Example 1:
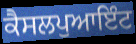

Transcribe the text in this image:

ਕੈਸਲਪੁਆਇੰਟ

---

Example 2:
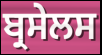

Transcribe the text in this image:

ਬ੍ਰਸੇਲਸ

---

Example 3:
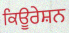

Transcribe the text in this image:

ਕਿਊਰੇਸ਼ਨ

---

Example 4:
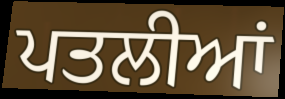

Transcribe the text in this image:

ਪਤਲੀਆਂ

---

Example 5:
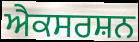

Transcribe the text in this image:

ਐਕਸਰਸ਼ਨ